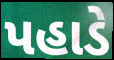
પહાડે